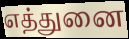
எத்துனை